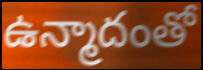
ఉన్మాదంతో